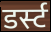
डर्स्ट